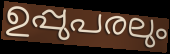
ഉപ്പുപരലും